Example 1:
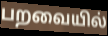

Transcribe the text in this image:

பறவையில்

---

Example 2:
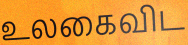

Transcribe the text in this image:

உலகைவிட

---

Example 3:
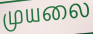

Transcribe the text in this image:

முயலை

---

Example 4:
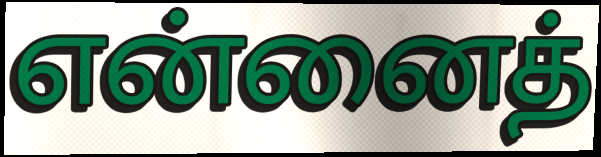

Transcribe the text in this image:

என்னைத்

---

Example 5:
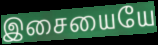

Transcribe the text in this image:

இசையையே